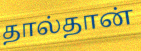
தால்தான்